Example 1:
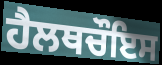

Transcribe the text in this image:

ਹੈਲਥਚੌਇਸ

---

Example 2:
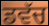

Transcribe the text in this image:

ਡਵੱਚ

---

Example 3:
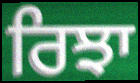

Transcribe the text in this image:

ਰਿਝਾ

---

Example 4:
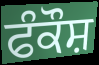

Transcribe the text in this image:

ਫੰਕੌਸ਼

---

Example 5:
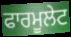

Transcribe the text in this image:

ਫਾਰਮੂਲੇਟ